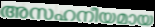
അസഹനീയമായ